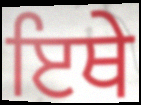
ਇਥੇ